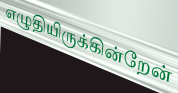
எழுதியிருக்கின்றேன்